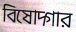
বিষোদ্গার